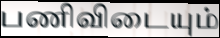
பணிவிடையும்